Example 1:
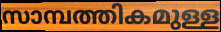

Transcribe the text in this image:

സാമ്പത്തികമുള്ള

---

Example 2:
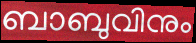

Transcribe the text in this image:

ബാബുവിനും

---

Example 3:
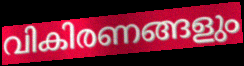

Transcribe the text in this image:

വികിരണങ്ങളും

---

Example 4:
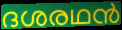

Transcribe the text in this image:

ദശരഥൻ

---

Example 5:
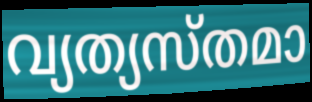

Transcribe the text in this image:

വ്യത്യസ്തമാ